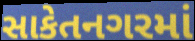
સાકેતનગરમાં